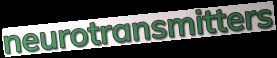
neurotransmitters